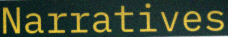
Narratives